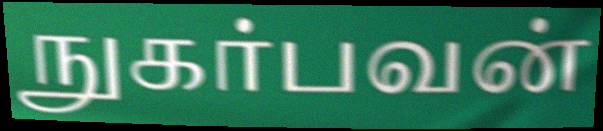
நுகர்பவன்